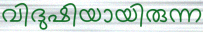
വിദുഷിയായിരുന്ന